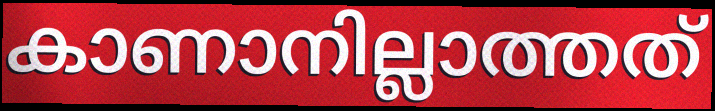
കാണാനില്ലാത്തത്